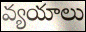
వ్యయాలు